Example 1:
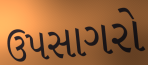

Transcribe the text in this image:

ઉપસાગરો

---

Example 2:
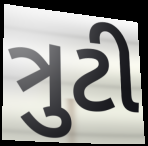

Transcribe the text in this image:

ત્રુટી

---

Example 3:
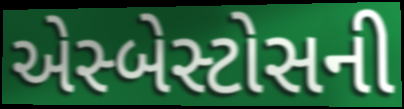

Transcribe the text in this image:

એસ્બેસ્ટોસની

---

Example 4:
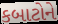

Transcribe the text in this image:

કબાટોને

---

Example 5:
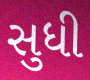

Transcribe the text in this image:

સુધી